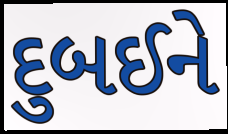
દુબઈને